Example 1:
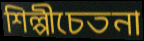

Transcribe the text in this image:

শিল্পীচেতনা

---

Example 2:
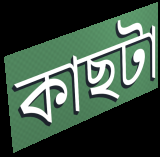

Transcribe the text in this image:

কাছটা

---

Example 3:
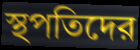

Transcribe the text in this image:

স্থপতিদের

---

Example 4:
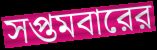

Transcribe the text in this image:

সপ্তমবারের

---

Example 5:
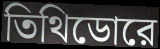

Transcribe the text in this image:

তিথিডোরে